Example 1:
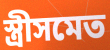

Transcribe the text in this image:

স্ত্রীসমেত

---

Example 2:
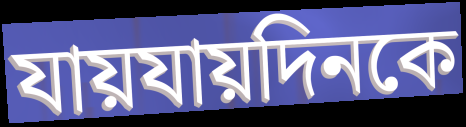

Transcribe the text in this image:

যায়যায়দিনকে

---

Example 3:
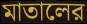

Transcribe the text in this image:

মাতালের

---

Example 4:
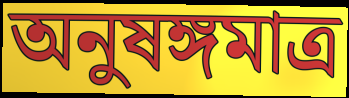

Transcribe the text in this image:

অনুষঙ্গমাত্র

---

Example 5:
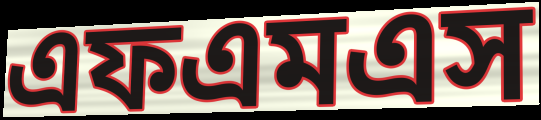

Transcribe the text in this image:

এফএমএস